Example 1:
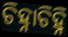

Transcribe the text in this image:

ଚିହ୍ନାଚିହ୍ନି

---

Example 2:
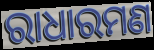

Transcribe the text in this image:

ରାଧାରମଣ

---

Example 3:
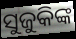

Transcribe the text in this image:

ସୁଜୁକିଙ୍କ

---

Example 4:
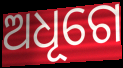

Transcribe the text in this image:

ଅଧୂଗେ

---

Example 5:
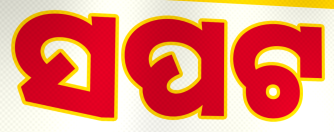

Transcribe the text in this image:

ସପଟ